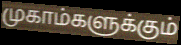
முகாம்களுக்கும்